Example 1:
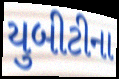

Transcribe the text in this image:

યુબીટીના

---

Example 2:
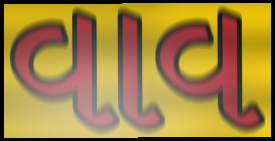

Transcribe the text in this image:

વાવ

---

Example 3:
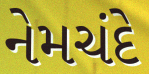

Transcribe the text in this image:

નેમચંદે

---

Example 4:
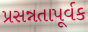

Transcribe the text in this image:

પ્રસન્નતાપૂર્વક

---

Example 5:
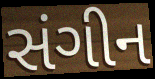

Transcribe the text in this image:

સંગીન